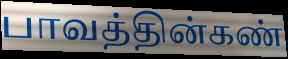
பாவத்தின்கண்